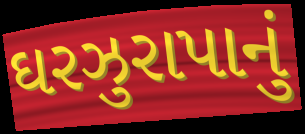
ઘરઝુરાપાનું